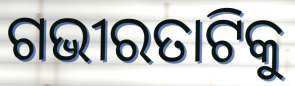
ଗଭୀରତାଟିକୁ